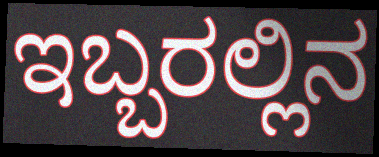
ಇಬ್ಬರಲ್ಲಿನ